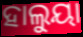
ହାଲୁୟା